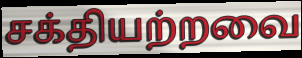
சக்தியற்றவை